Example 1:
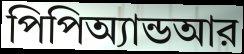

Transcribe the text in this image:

পিপিঅ্যান্ডআর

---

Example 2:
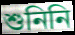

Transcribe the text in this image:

শুনিনি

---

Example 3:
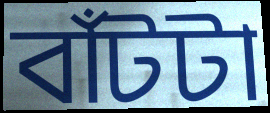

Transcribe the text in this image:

বাঁটটা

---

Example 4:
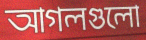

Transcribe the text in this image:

আগলগুলো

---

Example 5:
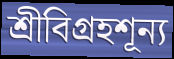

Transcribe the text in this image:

শ্রীবিগ্রহশূন্য